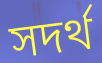
সদর্থ